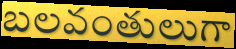
బలవంతులుగా